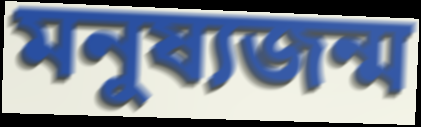
মনুষ্যজন্ম